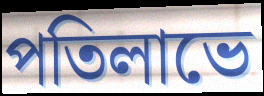
পতিলাভে